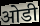
ओडी